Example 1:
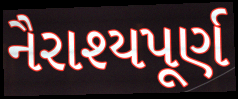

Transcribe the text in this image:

નૈરાશ્યપૂર્ણ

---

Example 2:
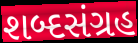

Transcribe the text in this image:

શબ્દસંગ્રહ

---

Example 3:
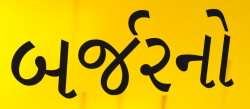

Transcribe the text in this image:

બર્જરનો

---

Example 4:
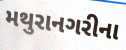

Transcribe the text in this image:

મથુરાનગરીના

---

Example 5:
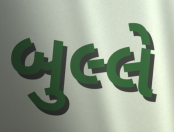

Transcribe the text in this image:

બુલ્લે